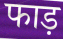
फाड़